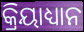
କ୍ରିୟାଧ୍ୟାନ